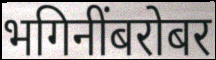
भगिनींबरोबर